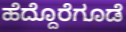
ಹೆದ್ದೊರೆಗೂಡೆ